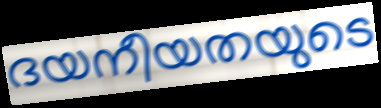
ദയനീയതയുടെ